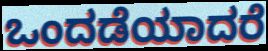
ಒಂದಡೆಯಾದರೆ